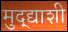
मुद्द्याशी